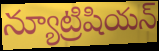
న్యూట్రిషియన్